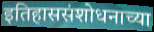
इतिहाससंशोधनाच्या